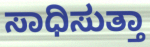
ಸಾಧಿಸುತ್ತಾ